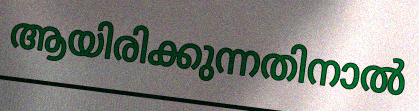
ആയിരിക്കുന്നതിനാൽ